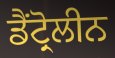
ਡੈਂਟ੍ਰੋਲੀਨ